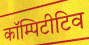
कॉम्पिटीटिव